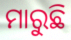
ମାରୁଛି